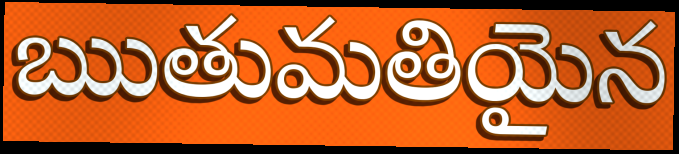
ఋతుమతియైన